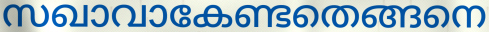
സഖാവാകേണ്ടതെങ്ങനെ